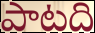
పాటది